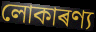
লোকাৰণ্য